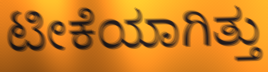
ಟೀಕೆಯಾಗಿತ್ತು